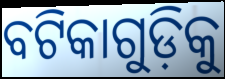
ବଟିକାଗୁଡ଼ିକୁ